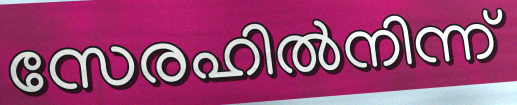
സേരഹിൽനിന്ന്